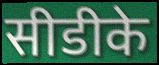
सीडीके